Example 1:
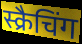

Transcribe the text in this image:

स्क्रैचिंग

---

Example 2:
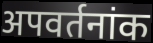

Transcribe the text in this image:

अपवर्तनांक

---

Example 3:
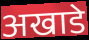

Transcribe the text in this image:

अखाडे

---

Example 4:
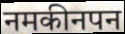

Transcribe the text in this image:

नमकीनपन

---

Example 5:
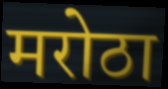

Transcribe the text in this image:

मरोठा